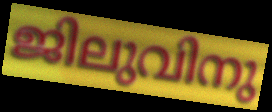
ജിലുവിനു